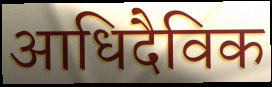
आधिदैविक